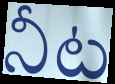
నీట